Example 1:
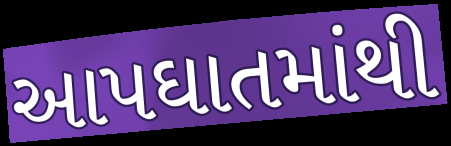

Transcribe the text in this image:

આપઘાતમાંથી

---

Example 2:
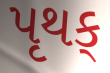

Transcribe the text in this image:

પૃથક્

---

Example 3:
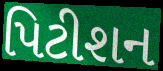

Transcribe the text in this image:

પિટીશન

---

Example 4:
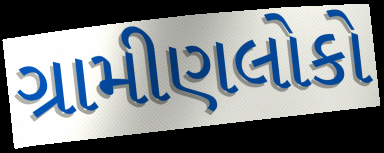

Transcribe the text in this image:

ગ્રામીણલોકો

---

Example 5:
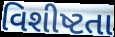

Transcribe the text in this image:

વિશીષ્ટતા